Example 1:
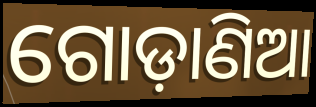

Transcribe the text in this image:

ଗୋଡ଼ାଣିଆ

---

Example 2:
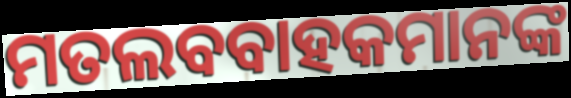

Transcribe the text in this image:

ମତଲବବାହକମାନଙ୍କ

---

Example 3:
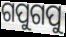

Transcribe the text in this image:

ଗପୁଗପୁ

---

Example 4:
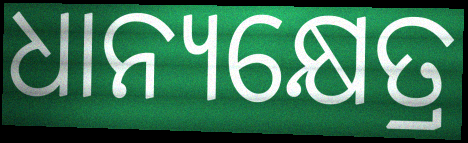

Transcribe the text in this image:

ଧାନ୍ୟକ୍ଷେତ୍ର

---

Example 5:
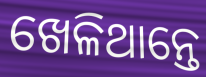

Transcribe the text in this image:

ଖେଳିଥାନ୍ତେ